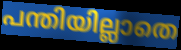
പന്തിയില്ലാതെ